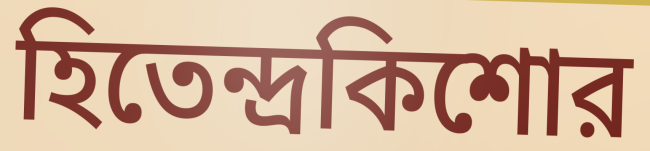
হিতেন্দ্রকিশোর